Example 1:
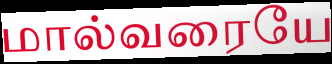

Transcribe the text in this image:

மால்வரையே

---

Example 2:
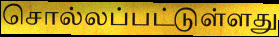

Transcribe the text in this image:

சொல்லப்பட்டுள்ளது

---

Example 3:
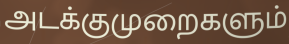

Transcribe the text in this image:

அடக்குமுறைகளும்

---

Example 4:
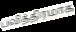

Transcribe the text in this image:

பவித்திரமாக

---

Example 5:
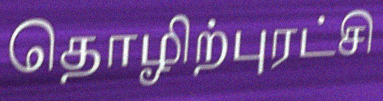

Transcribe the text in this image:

தொழிற்புரட்சி